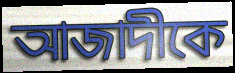
আজাদীকে